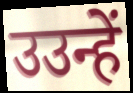
उउन्हें